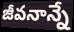
జీవనాన్నే